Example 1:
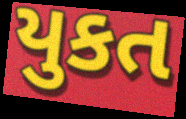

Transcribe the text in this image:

યુકત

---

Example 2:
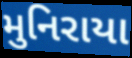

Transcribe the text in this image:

મુનિરાયા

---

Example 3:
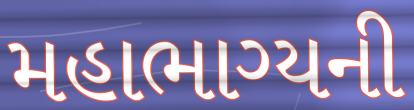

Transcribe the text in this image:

મહાભાગ્યની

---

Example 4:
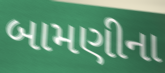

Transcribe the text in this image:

બામણીના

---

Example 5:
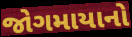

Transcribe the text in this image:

જોગમાયાનો